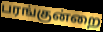
பரங்குன்றை